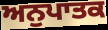
ਅਨੁਪਾਤਕ